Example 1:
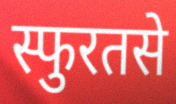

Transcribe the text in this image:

स्फुरतसे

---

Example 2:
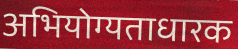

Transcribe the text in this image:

अभियोग्यताधारक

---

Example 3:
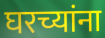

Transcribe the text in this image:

घरच्‍यांना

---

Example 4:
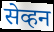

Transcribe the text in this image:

सेव्हन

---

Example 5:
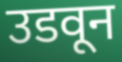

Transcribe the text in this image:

उडवून